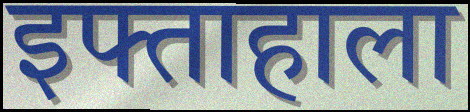
इफ्ताहाला